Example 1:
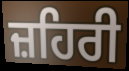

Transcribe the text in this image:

ਜ਼ਹਿਰੀ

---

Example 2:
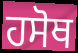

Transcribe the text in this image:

ਹਸੋਥ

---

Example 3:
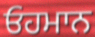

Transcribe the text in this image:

ਓਹਮਾਨ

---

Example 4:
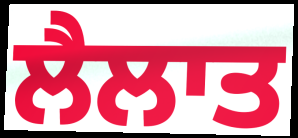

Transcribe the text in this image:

ਲੈਲਾਤ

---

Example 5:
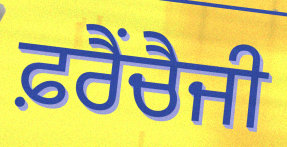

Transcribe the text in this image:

ਫ਼ਰੈਂਚੈਜੀ